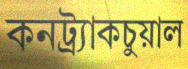
কনট্র্যাকচুয়াল